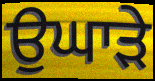
ਉਘਾੜੇ